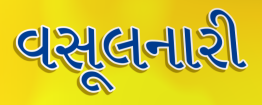
વસૂલનારી